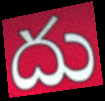
దు